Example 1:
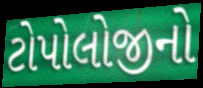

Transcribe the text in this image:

ટોપોલોજીનો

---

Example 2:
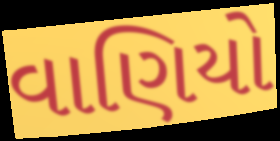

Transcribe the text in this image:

વાણિયો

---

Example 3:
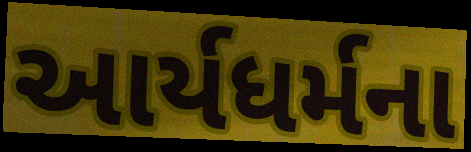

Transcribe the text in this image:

આર્યધર્મના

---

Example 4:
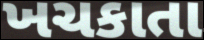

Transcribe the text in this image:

ખચકાતા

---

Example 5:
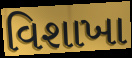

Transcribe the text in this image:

વિશાખા